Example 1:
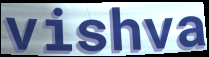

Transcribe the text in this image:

vishva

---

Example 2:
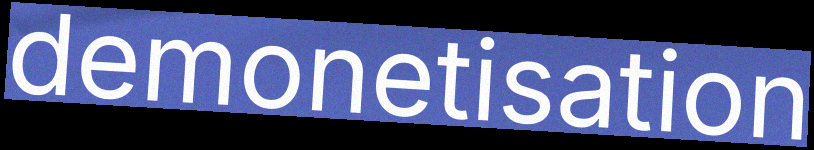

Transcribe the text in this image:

demonetisation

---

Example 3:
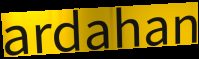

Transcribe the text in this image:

ardahan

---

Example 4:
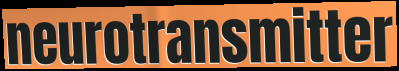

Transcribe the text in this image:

neurotransmitter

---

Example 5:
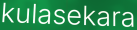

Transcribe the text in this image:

kulasekara